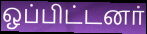
ஒப்பிட்டனர்